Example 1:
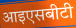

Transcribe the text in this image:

आइएसबीटी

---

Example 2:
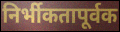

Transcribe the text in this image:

निर्भीकतापूर्वक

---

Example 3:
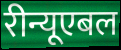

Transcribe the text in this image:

रीन्यूएबल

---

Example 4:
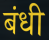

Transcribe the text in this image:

बंधी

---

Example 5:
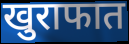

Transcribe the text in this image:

खुराफात